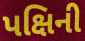
પક્ષિની